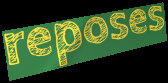
reposes